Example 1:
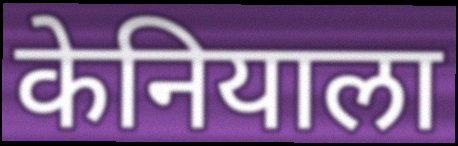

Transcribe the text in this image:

केनियाला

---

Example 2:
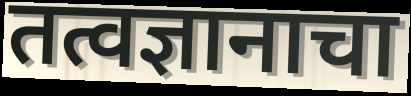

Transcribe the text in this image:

तत्वज्ञानाचा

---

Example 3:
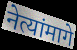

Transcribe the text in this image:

नेत्यांमागे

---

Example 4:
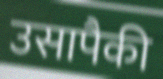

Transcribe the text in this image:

उसापैकी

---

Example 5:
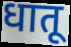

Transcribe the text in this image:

धातू